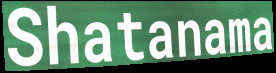
Shatanama